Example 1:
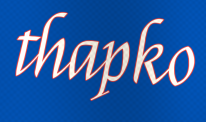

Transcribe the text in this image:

thapko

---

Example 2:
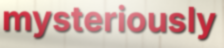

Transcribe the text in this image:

mysteriously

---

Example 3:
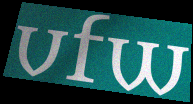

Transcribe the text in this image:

ufw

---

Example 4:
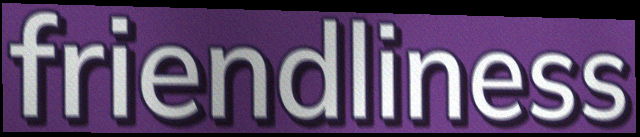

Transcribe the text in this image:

friendliness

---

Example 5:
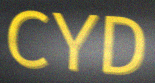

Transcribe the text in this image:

CYD